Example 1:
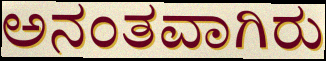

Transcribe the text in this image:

ಅನಂತವಾಗಿರು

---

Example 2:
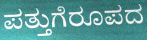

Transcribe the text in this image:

ಪತ್ತುಗೆರೂಪದ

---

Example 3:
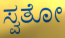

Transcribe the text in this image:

ಸ್ವತೋ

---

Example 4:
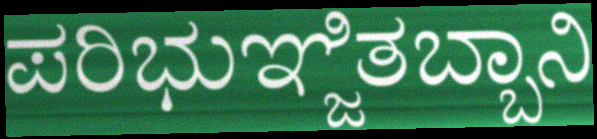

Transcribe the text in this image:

ಪರಿಭುಞ್ಜಿತಬ್ಬಾನಿ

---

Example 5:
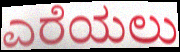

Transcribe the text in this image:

ಎರೆಯಲು